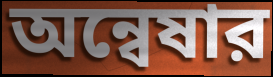
অন্বেষার